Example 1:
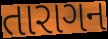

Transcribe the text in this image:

તારાગન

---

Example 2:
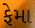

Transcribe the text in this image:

ફેમા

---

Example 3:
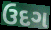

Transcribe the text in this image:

ઉદગ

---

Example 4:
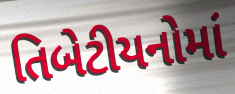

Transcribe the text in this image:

તિબેટીયનોમાં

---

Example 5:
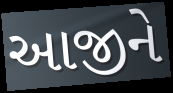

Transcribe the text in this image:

આજીને